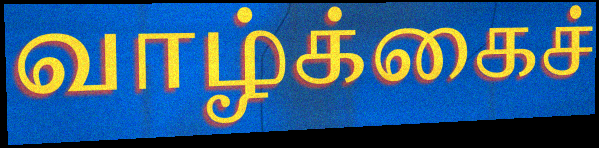
வாழ்க்கைச்